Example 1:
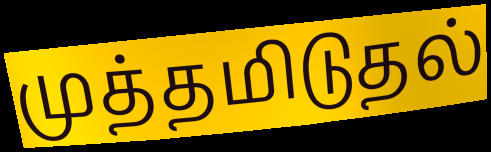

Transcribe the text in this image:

முத்தமிடுதல்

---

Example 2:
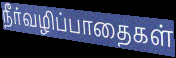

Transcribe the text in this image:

நீர்வழிப்பாதைகள்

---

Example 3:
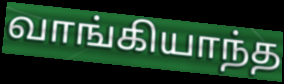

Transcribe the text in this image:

வாங்கியாந்த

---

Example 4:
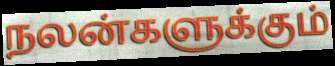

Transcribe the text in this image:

நலன்களுக்கும்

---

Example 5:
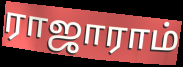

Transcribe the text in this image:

ராஜாராம்